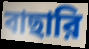
বাছারি